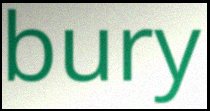
bury